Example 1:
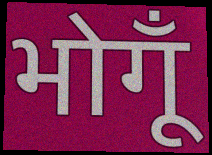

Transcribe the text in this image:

भोगूँ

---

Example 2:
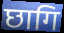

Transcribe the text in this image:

छागि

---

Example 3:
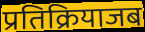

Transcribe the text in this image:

प्रतिक्रियाजब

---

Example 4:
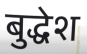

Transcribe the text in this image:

बुद्धेश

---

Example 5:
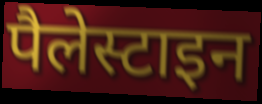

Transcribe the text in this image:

पैलेस्टाइन